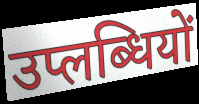
उप्लब्धियों